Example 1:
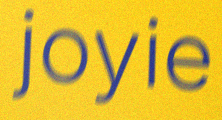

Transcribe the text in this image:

joyie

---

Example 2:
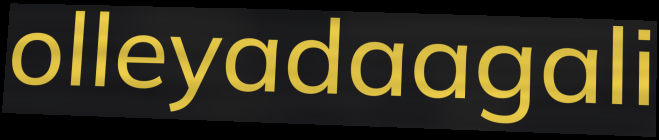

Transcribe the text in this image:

olleyadaagali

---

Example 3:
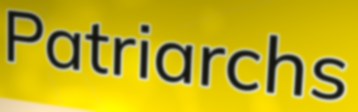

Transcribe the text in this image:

Patriarchs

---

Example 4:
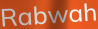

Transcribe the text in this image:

Rabwah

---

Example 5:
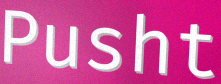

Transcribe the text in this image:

Pusht